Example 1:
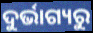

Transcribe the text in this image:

ଦୁର୍ଭାଗ୍ୟରୁ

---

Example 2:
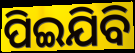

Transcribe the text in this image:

ପିଇଯିବି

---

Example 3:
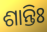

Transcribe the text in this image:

ଶାନ୍ତିଃ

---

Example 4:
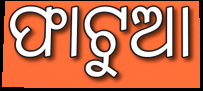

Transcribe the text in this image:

ଫାଟୁଆ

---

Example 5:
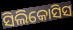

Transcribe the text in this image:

ସିଲିକୋସିସ